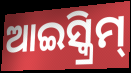
ଆଇସ୍କ୍ରିମ୍